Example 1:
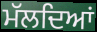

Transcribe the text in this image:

ਮੱਲਦਿਆਂ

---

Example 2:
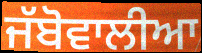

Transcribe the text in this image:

ਜੱਬੋਵਾਲੀਆ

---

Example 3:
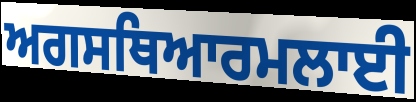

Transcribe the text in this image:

ਅਗਸਥਿਆਰਮਲਾਈ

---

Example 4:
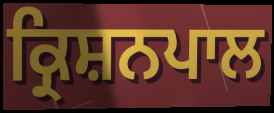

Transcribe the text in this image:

ਕ੍ਰਿਸ਼ਨਪਾਲ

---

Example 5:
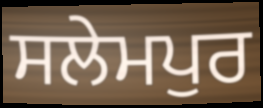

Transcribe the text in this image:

ਸਲੇਮਪੁਰ